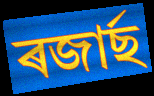
ৰজাৰ্ছ